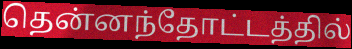
தென்னந்தோட்டத்தில்